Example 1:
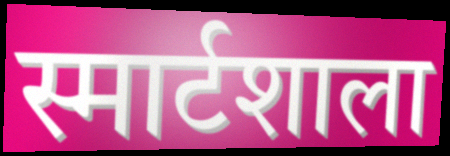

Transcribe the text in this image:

स्मार्टशाला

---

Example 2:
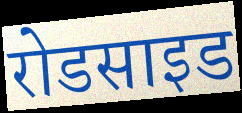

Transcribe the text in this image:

रोडसाइड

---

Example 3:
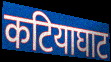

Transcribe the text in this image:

कटियाघाट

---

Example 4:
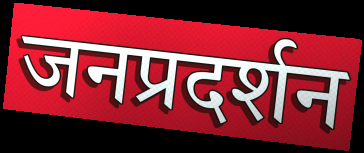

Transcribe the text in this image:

जनप्रदर्शन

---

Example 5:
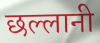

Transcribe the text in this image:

छल्लानी